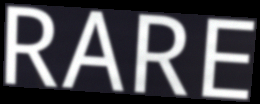
RARE